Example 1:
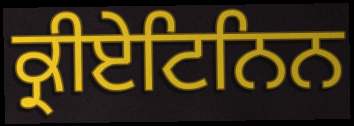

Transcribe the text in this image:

ਕ੍ਰੀਏਟਿਨਿਨ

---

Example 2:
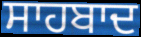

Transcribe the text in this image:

ਸਾਹਬਾਦ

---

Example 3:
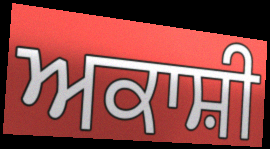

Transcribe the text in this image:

ਅਕਾਸ਼ੀ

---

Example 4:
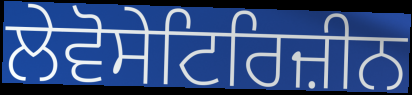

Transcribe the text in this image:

ਲੇਵੋਸੇਟਿਰਿਜ਼ੀਨ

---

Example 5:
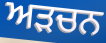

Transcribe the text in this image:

ਅੜਚਨ